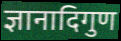
ज्ञानादिगुण